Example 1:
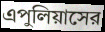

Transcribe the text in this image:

এপুলিয়াসের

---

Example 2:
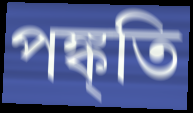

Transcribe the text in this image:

পঙ্ক্তি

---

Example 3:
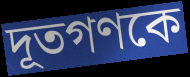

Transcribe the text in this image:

দূতগণকে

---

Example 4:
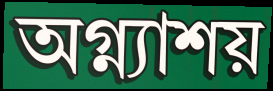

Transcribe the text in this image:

অগ্ন্যাশয়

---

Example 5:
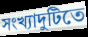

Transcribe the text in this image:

সংখ্যাদুটিতে